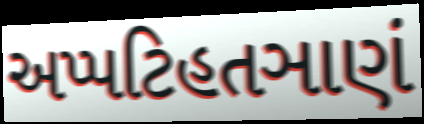
અપ્પટિહતઞાણં